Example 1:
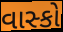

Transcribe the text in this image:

વાસ્કો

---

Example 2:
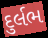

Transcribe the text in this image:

દુર્લભ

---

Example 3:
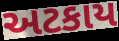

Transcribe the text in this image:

અટકાય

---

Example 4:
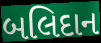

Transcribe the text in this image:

બલિદાન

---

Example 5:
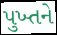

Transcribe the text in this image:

પુખ્તને